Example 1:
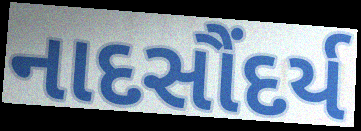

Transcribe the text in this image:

નાદસૌંદર્ય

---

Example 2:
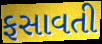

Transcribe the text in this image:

ફસાવતી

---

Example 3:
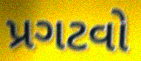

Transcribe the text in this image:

પ્રગટવો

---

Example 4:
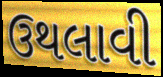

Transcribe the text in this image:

ઉથલાવી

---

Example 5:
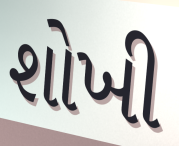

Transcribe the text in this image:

શોખી